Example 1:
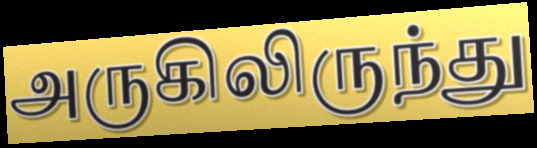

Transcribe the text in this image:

அருகிலிருந்து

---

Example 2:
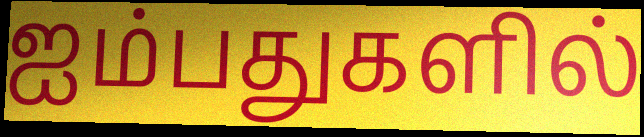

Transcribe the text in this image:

ஐம்பதுகளில்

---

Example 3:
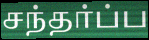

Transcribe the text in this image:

சந்தர்ப்ப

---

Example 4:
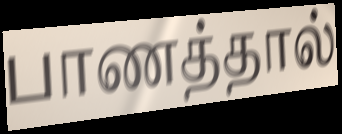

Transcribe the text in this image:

பாணத்தால்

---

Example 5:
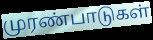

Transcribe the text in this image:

முரண்பாடுகள்